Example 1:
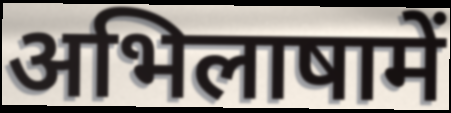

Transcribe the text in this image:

अभिलाषामें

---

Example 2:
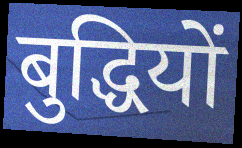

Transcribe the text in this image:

बुद्धियों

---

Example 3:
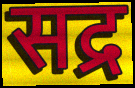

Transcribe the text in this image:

सद्र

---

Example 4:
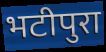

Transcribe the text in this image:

भटीपुरा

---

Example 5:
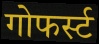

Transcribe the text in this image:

गोफर्स्ट